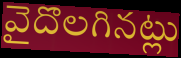
వైదొలగినట్లు